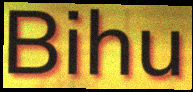
Bihu